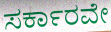
ಸರ್ಕಾರವೇ